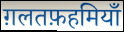
ग़लतफ़हमियाँ